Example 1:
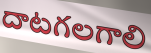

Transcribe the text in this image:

దాటగలగాలి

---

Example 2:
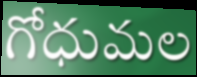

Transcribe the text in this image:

గోధుమల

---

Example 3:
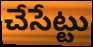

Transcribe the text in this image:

చేసేట్టు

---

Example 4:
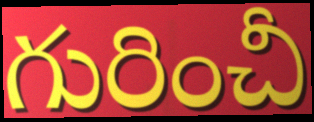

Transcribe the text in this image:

గురించీ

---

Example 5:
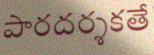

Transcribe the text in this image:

పారదర్శకతే